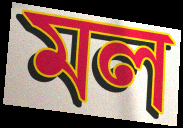
মল